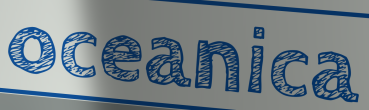
oceanica